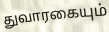
துவாரகையும்